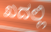
ಖದಲ್ಲಿ